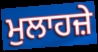
ਮੁਲਾਹਜ਼ੇ